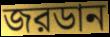
জরডান